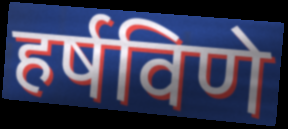
हर्षविणे